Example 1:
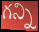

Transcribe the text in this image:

గన్ని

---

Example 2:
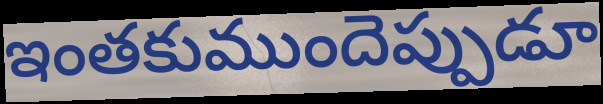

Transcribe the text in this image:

ఇంతకుముందెప్పుడూ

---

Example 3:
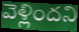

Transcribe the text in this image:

వెళ్లిందని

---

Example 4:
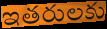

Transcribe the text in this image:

ఇతరులకు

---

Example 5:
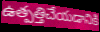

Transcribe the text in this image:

ఉత్పత్తిచేయడానికి